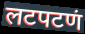
लटपटणं